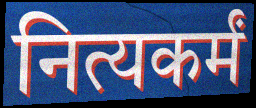
नित्यकर्मं